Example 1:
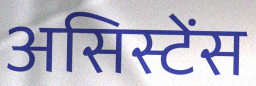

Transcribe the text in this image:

असिस्टेंस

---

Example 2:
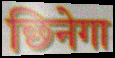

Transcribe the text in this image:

छिनेगा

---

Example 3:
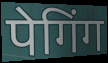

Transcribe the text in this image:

पेगिंग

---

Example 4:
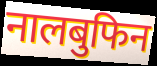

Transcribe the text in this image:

नालबुफिन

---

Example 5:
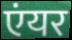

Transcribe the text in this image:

एंयर